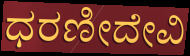
ಧರಣೀದೇವಿ